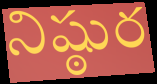
నిష్ఠుర